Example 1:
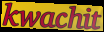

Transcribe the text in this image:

kwachit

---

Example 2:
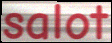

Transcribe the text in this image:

salot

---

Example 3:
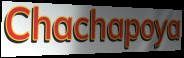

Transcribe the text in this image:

Chachapoya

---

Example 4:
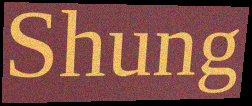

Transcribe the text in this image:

Shung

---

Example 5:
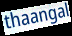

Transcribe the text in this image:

thaangal